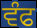
ਵੰਫ